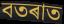
বতৰাত